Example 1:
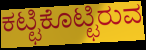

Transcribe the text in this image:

ಕಟ್ಟಿಕೊಟ್ಟಿರುವ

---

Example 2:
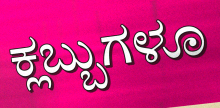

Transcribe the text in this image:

ಕ್ಲಬ್ಬುಗಳೂ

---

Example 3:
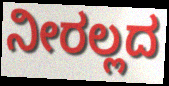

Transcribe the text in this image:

ನೀರಲ್ಲದ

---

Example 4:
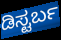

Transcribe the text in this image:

ಡಿಸ್ಟರ್ಬ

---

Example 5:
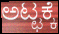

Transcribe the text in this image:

ಅಟ್ಟಕ್ಕೆ